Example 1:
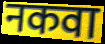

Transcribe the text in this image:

नकवा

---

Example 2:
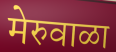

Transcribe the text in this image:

मेरुवाळा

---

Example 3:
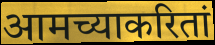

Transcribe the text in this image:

आमच्याकरितां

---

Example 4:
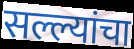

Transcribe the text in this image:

सल्ल्यांचा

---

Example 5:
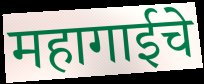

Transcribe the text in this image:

महागाईचे